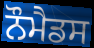
ਨੌਮੈਡਸ